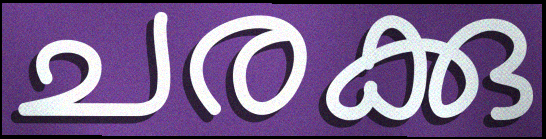
ചരക്കു